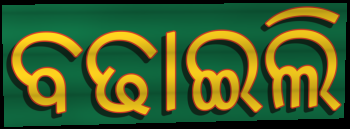
ବଢାଇଲି